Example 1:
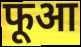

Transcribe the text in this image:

फूआ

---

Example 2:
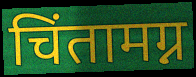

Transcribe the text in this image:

चिंतामग्न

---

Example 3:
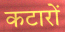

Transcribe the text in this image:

कटारों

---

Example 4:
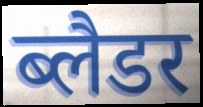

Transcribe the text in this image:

ब्लैडर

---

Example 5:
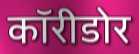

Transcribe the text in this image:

कॉरीडोर